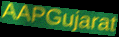
AAPGujarat